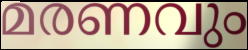
മരണവും